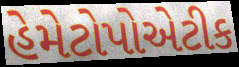
હેમેટોપોએટીક